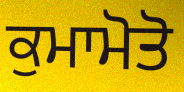
ਕੁਮਾਮੋਤੋ